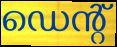
ഡെന്റ്